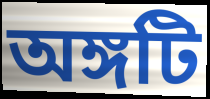
অঙ্গটি